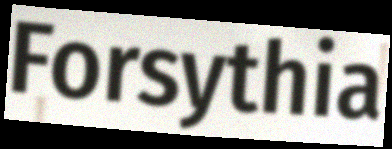
Forsythia